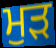
ਮੁੜ